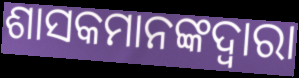
ଶାସକମାନଙ୍କଦ୍ୱାରା